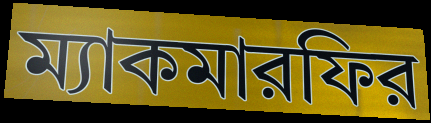
ম্যাকমারফির